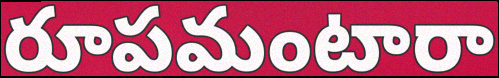
రూపమంటారా